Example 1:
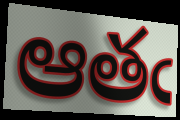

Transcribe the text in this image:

ఆతఁ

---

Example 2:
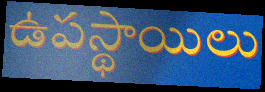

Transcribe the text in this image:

ఉపస్థాయిలు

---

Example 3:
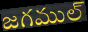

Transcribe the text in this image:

జగముల్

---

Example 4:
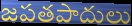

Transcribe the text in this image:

జపతపాదులు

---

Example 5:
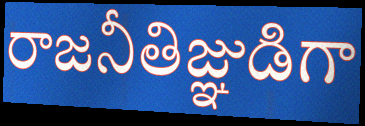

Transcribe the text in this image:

రాజనీతిజ్ఞుడిగా